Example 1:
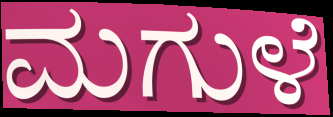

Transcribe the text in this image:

ಮಗುಳೆ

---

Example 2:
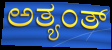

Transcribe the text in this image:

ಅತ್ಯಂತ್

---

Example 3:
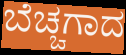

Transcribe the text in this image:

ಬೆಚ್ಚಗಾದ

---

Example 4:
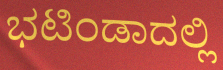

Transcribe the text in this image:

ಭಟಿಂಡಾದಲ್ಲಿ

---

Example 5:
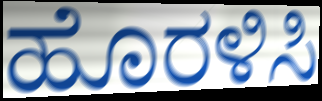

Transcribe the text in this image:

ಹೊರಳಿಸಿ